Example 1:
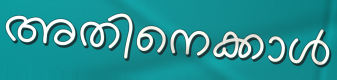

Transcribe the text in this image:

അതിനെക്കാൾ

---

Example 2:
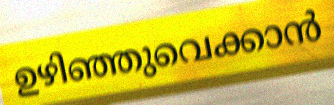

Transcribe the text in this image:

ഉഴിഞ്ഞുവെക്കാൻ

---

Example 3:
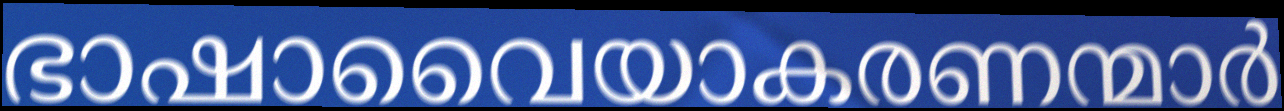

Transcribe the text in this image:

ഭാഷാവൈയാകരണന്മാർ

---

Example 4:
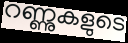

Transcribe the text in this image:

റണ്ണുകളുടെ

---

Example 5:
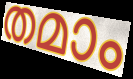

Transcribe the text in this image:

തമാം